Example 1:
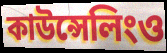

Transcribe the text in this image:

কাউন্সেলিংও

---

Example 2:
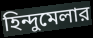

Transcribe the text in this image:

হিন্দুমেলার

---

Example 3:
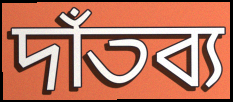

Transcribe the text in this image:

দাঁতব্য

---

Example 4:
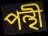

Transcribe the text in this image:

পন্থী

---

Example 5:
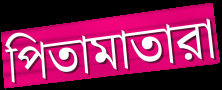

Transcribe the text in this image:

পিতামাতারা